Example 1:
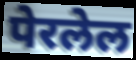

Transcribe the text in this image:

पेरलेल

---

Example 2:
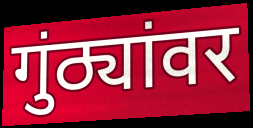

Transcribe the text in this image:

गुंठ्यांवर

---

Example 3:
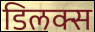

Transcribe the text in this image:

डिलक्स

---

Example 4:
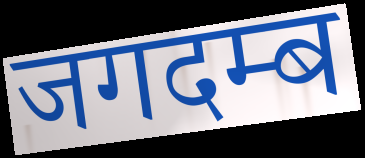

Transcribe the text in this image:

जगदम्ब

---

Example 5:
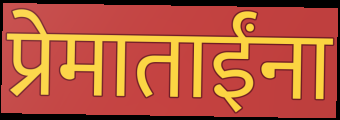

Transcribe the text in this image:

प्रेमाताईंना